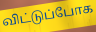
விட்டுப்போக